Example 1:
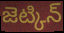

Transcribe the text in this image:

జెట్కిన్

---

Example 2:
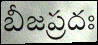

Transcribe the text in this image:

బీజప్రదః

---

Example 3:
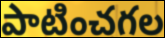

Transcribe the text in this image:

పాటించగల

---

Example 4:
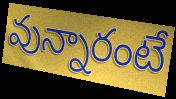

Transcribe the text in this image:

వున్నారంటే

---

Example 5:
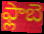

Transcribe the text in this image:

ఫ్లాబె